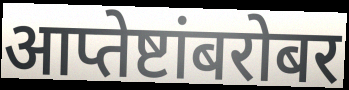
आप्तेष्टांबरोबर